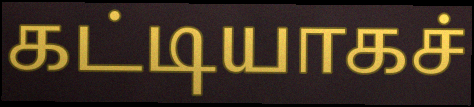
கட்டியாகச்